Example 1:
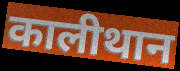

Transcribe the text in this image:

कालीथान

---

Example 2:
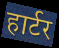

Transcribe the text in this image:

हार्टर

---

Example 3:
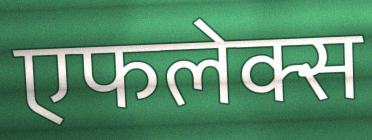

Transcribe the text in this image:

एफलेक्स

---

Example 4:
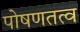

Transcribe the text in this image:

पोषणतत्व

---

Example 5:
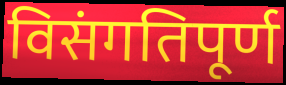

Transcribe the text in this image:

विसंगतिपूर्ण